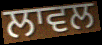
ਲਾਵਲ